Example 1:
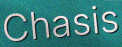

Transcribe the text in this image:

Chasis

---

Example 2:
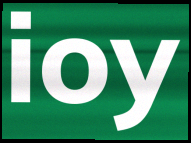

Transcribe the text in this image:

ioy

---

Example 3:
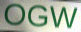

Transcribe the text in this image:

OGW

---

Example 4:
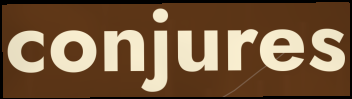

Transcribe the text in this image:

conjures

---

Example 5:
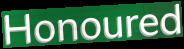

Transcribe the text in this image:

Honoured